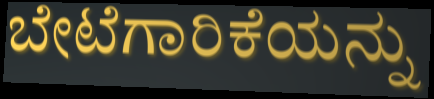
ಬೇಟೆಗಾರಿಕೆಯನ್ನು